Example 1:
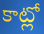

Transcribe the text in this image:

కాట్లో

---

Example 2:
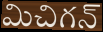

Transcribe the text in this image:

మిచిగన్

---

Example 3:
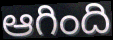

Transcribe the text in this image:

ఆగింది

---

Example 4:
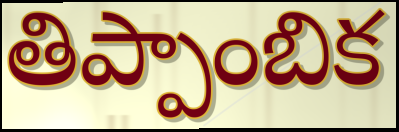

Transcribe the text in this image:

తిప్పాంబిక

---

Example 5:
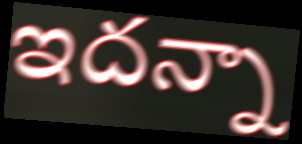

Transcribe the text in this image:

ఇదన్నా